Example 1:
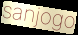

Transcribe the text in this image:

sanjogo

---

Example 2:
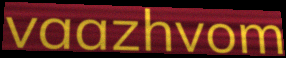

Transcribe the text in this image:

vaazhvom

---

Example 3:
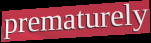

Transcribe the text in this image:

prematurely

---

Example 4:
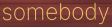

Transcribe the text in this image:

somebody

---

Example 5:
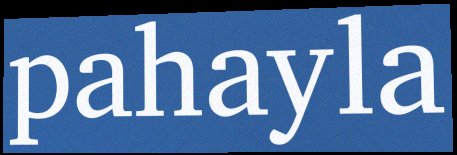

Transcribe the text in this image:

pahayla